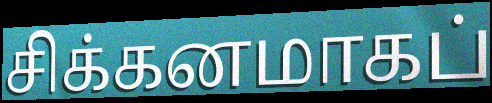
சிக்கனமாகப்